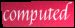
computed